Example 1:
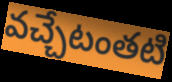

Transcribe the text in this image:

వచ్చేటంతటి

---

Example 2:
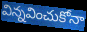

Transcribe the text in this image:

విన్నవించుకోనా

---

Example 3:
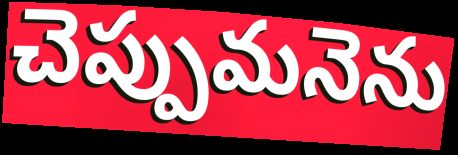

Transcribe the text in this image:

చెప్పుమనెను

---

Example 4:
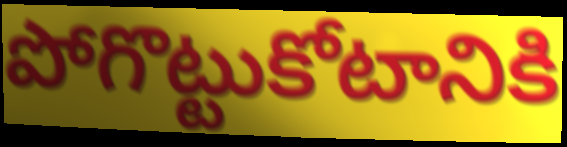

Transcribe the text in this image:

పోగొట్టుకోటానికి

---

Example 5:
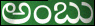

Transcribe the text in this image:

అంబు